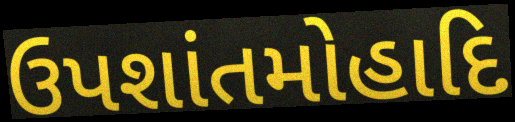
ઉપશાંતમોહાદિ